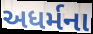
અધર્મના